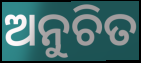
ଅନୁଚିତ